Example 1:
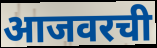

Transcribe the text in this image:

आजवरची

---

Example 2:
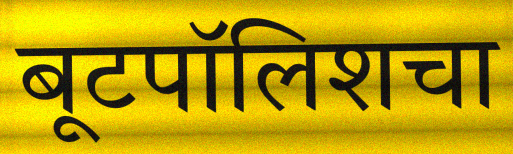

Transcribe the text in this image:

बूटपॉलिशचा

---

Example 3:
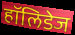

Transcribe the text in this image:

हॉलिडेज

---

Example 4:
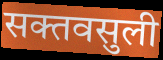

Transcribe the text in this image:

सक्तवसुली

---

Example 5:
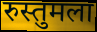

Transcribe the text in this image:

रुस्तुमला